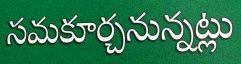
సమకూర్చనున్నట్లు